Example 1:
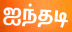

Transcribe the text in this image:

ஐந்தடி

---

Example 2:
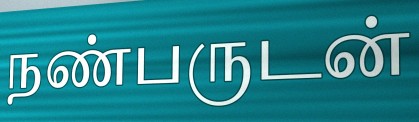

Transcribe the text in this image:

நண்பருடன்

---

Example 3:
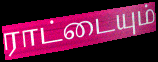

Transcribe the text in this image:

ராட்டையும்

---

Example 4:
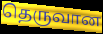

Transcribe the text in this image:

தெருவான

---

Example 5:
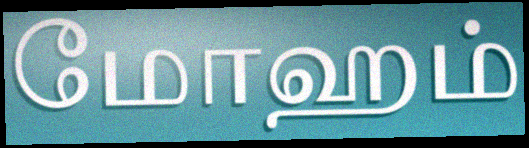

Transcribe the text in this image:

மோஹம்